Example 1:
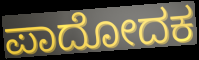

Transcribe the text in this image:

ಪಾದೋದಕ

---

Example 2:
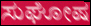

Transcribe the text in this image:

ಸುಘೋಷ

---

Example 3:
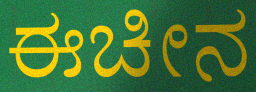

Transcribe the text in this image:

ಈಚೀನ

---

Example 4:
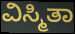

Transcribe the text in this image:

ವಿಸ್ಮಿತಾ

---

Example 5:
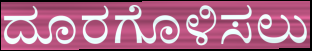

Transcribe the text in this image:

ದೂರಗೊಳಿಸಲು